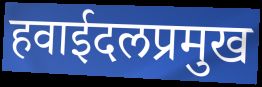
हवाईदलप्रमुख